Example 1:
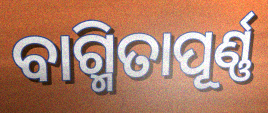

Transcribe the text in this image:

ବାଗ୍ମିତାପୂର୍ଣ୍ଣ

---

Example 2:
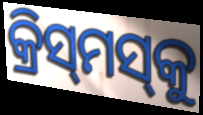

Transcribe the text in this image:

କ୍ରିସ୍‌ମସ୍‌କୁ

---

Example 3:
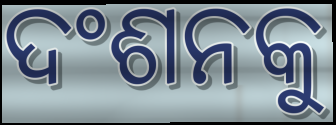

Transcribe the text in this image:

ଦଂଶନକୁ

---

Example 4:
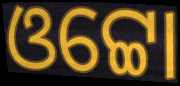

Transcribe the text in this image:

ଓଟ୍ଟୋ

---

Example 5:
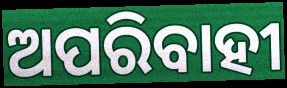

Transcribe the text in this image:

ଅପରିବାହୀ